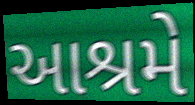
આશ્રમે